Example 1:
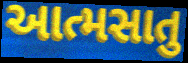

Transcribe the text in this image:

આત્મસાતુ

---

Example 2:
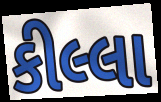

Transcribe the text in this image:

કીલ્લા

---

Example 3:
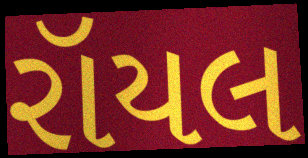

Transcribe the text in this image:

રૉયલ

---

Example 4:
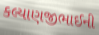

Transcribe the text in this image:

કલ્યાણજીભાઈની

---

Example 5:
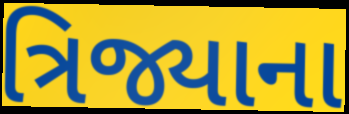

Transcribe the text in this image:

ત્રિજ્યાના